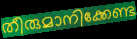
തീരുമാനിക്കേണ്ട